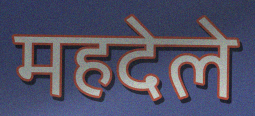
महदेले